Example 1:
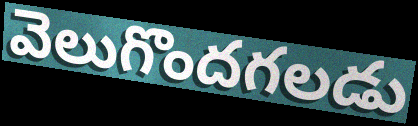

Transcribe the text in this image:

వెలుగొందగలడు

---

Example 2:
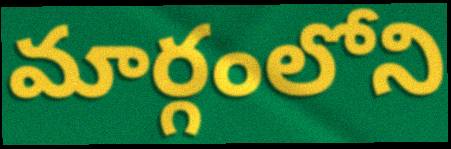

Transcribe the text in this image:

మార్గంలోని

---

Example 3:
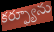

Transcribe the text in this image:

కర్ఫ్యూను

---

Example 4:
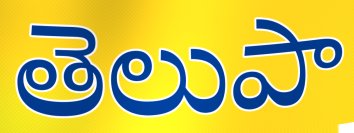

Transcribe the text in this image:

తెలుపా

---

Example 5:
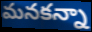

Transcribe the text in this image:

మనకన్నా